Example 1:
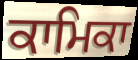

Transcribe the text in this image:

ਕਾਮਿਕਾ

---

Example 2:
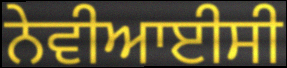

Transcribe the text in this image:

ਨੇਵੀਆਈਸੀ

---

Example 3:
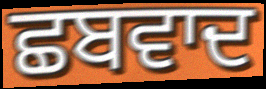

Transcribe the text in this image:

ਛਬਵਾਦ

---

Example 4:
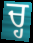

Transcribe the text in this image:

ਚ੍ਹ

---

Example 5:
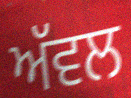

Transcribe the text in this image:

ਅੱਵਲ